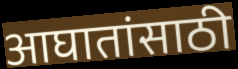
आघातांसाठी